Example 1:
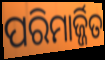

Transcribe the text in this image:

ପରିମାର୍ଜ୍ଜିତ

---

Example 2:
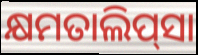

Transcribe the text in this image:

କ୍ଷମତାଲିପ୍‍ସା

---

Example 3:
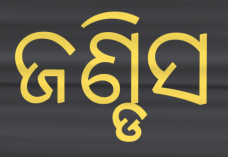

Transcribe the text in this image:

ଜଣ୍ଡିସ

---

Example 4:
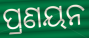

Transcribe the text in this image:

ପ୍ରଣୟନ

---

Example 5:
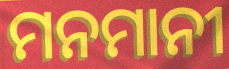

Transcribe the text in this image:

ମନମାନୀ